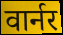
वार्नर